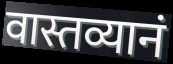
वास्तव्यानं